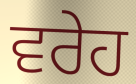
ਵਰੇਹ